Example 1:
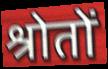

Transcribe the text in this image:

श्रोतों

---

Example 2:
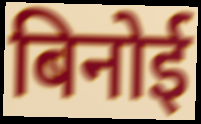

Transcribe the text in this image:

बिनोई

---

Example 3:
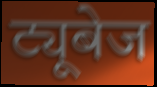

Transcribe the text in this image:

ट्यूबेज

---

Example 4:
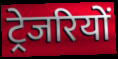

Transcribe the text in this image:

ट्रेजरियों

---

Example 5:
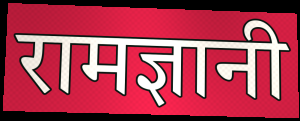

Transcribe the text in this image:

रामज्ञानी